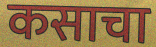
कसाचा